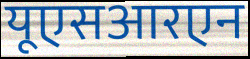
यूएसआरएन